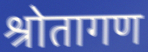
श्रोतागण